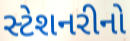
સ્ટેશનરીનો